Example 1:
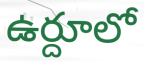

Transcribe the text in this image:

ఉర్దూలో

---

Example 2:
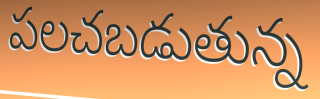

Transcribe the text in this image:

పలచబడుతున్న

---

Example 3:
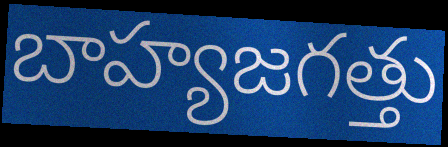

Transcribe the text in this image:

బాహ్యజగత్తు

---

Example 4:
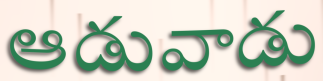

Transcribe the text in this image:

ఆడువాడు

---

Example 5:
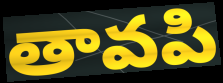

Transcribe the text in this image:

తావపి